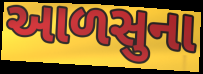
આળસુના